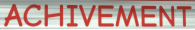
ACHIVEMENT